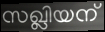
സഖ്ലിയന്